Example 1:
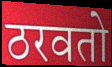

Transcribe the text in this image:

ठरवतो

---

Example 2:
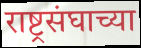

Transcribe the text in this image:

राष्ट्रसंघाच्या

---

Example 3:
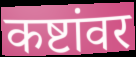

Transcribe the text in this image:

कष्टांवर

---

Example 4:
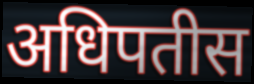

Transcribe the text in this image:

अधिपतीस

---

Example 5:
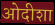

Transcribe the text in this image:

ओदीशा